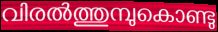
വിരൽത്തുമ്പുകൊണ്ടു